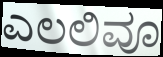
ಎಲಲಿವೂ